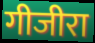
गीजीरा